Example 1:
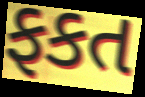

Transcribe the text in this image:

ફકત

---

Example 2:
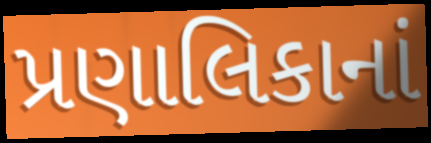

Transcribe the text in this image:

પ્રણાલિકાનાં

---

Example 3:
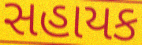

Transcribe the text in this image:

સહાયક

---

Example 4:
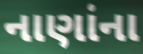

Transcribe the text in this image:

નાણાંના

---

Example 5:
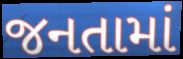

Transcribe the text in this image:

જનતામાં